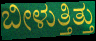
ಬೀಳುತ್ತಿತ್ತು